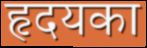
हृदयका